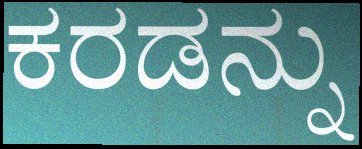
ಕರಡನ್ನು